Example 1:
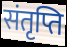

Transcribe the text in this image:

संतृप्ति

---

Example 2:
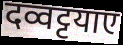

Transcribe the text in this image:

दव्वट्टयाए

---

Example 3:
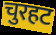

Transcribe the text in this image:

चुरहट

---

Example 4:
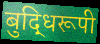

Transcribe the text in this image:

बुद्धिरूपी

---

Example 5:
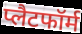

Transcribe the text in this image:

प्लैटफॉर्म